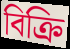
বিক্রি